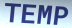
TEMP